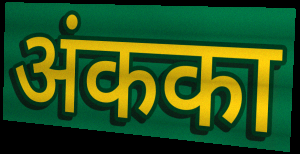
अंकका